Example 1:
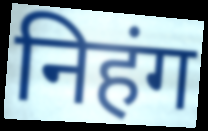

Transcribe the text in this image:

निहंग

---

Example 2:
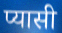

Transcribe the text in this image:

प्यासी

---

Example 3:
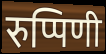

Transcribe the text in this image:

रुप्पिणी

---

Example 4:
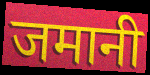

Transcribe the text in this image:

जमानी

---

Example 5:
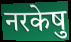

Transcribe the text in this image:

नरकेषु